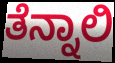
ತೆನ್ನಾಲಿ